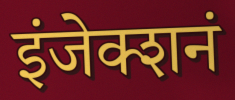
इंजेक्शनं